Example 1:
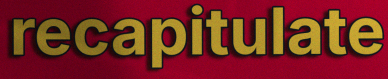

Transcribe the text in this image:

recapitulate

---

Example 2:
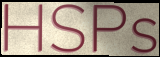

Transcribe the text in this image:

HSPs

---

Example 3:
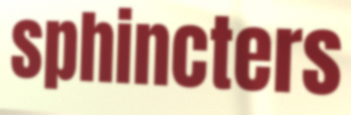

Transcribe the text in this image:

sphincters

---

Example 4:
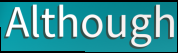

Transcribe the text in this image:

Although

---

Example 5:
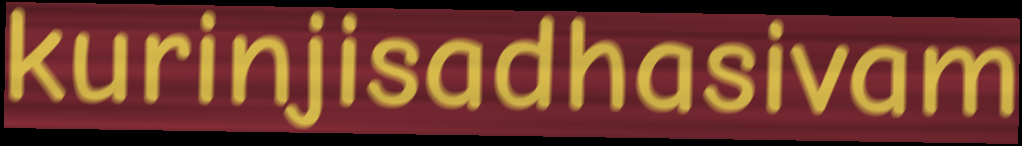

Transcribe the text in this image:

kurinjisadhasivam